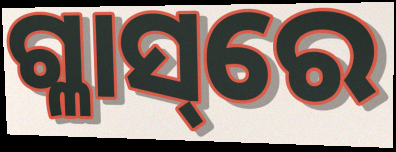
ଗ୍ଳାସ୍‌ରେ